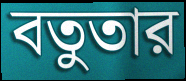
বতুতার